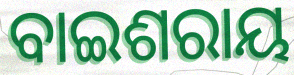
ବାଇଶରାୟ